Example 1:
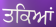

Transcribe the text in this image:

ਤਕਿਆਂ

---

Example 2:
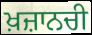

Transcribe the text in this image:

ਖ਼ਜ਼ਾਨਚੀ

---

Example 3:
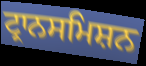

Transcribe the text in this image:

ਟ੍ਰਾਨਸਮਿਸ਼ਨ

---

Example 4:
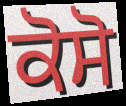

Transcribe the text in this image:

ਕੋਸੋ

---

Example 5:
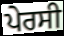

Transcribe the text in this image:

ਪੇਰਸੀ